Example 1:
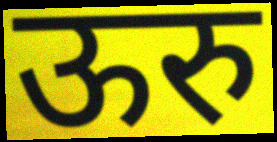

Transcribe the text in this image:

ऊरु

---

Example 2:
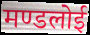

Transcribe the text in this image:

मण्डलोई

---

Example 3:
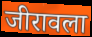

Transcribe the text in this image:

जीरावला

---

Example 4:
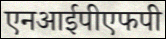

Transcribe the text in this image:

एनआईपीएफपी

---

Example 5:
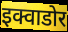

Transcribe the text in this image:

इक्वाडोर